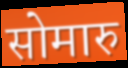
सोमारु